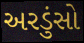
અરડુંસો